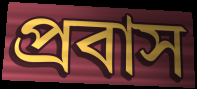
প্রবাস